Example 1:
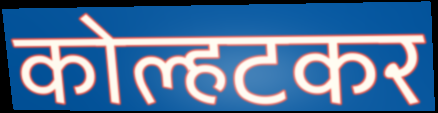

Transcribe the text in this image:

कोल्हटकर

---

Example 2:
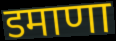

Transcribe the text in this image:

डमाणा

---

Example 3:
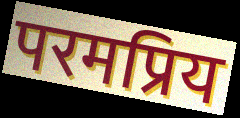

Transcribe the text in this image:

परमप्रिय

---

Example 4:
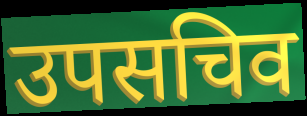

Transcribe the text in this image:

उपसचिव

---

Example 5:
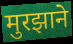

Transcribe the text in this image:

मुरझाने